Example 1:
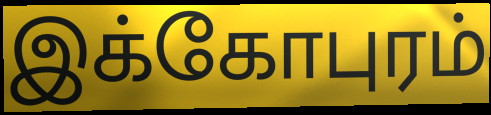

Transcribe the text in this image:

இக்கோபுரம்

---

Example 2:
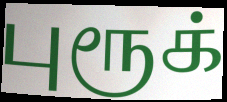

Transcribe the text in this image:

புரூக்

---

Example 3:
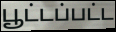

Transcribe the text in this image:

பூட்டப்பட்ட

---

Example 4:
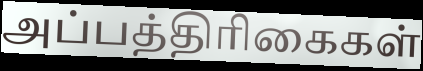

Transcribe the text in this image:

அப்பத்திரிகைகள்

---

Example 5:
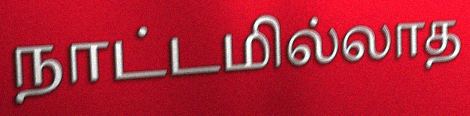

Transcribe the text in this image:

நாட்டமில்லாத